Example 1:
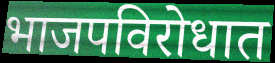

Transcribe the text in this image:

भाजपविरोधात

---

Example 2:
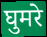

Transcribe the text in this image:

घुमरे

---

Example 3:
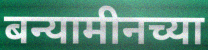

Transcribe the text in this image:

बन्यामीनच्या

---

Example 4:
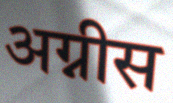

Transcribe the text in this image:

अग्नीस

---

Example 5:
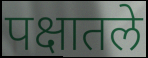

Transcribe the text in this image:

पक्षातले